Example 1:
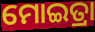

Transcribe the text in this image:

ମୋଇତ୍ରା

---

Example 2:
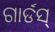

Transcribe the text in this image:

ଗାର୍ଡସ୍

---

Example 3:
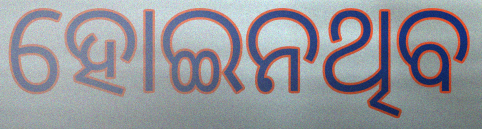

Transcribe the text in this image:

ହୋଇନଥିବ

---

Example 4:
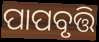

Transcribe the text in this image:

ପାପବୃତ୍ତି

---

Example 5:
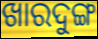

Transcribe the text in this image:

ଖାରଦୁଙ୍ଗ